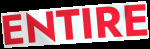
ENTIRE